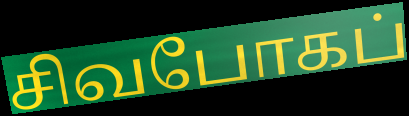
சிவபோகப்